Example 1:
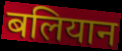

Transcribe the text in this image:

बलियान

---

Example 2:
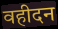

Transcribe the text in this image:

वहीदन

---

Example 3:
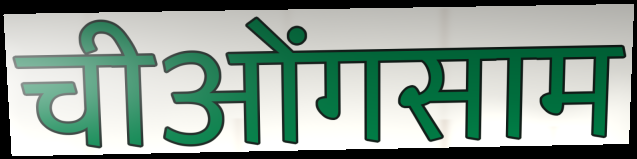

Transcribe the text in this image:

चीओंगसाम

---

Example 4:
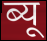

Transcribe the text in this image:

ब्यू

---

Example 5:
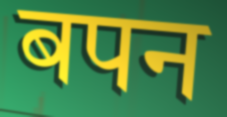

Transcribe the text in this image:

बपन